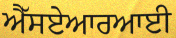
ਐੱਸਏਆਰਆਈ